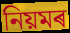
নিয়মৰ